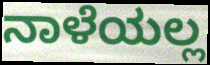
ನಾಳೆಯಲ್ಲ